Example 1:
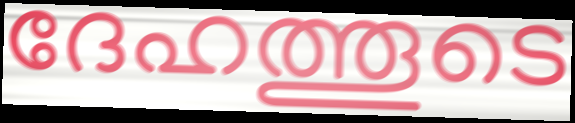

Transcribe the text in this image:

ദേഹത്തൂടെ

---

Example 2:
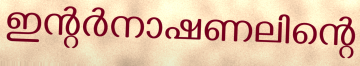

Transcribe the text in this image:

ഇന്റർനാഷണലിന്റെ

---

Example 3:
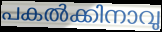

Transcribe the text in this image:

പകൽക്കിനാവു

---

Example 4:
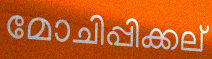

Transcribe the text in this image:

മോചിപ്പിക്കല്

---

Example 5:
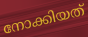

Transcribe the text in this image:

നോക്കിയത്